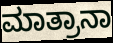
ಮಾತ್ರಾನಾ